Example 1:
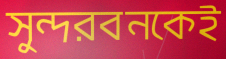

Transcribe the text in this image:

সুন্দরবনকেই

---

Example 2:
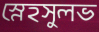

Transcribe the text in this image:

স্নেহসুলভ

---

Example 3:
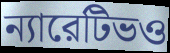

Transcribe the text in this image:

ন্যারেটিভও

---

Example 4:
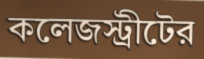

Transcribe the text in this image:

কলেজস্ট্রীটের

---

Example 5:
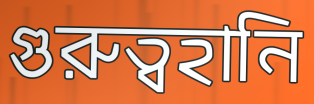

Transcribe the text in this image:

গুরুত্বহানি